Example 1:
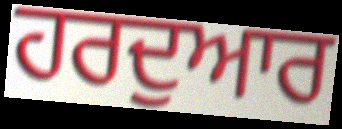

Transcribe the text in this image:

ਹਰਦੁਆਰ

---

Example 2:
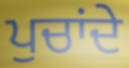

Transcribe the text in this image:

ਪੁਚਾਂਦੇ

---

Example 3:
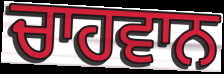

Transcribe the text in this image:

ਚਾਹਵਾਨ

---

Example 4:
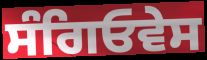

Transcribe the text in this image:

ਸੰਗਿਓਵੇਸ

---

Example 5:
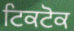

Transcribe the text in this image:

ਟਿਕਟੋਕ